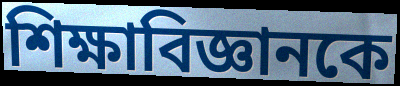
শিক্ষাবিজ্ঞানকে